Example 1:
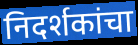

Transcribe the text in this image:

निदर्शकांचा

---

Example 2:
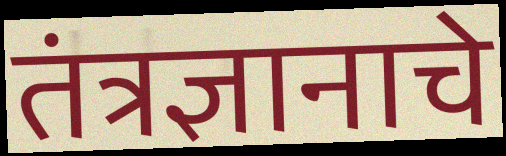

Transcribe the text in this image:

तंत्रज्ञानाचे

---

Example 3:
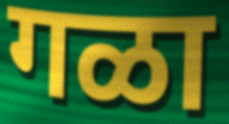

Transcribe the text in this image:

गळा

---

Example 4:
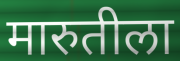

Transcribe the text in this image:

मारुतीला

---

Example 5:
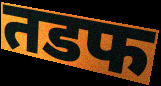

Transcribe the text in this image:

तडफ